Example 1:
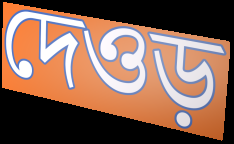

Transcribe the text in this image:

দেওড়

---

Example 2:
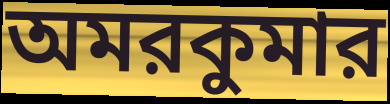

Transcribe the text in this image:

অমরকুমার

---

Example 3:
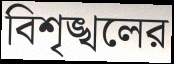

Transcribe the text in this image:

বিশৃঙ্খলের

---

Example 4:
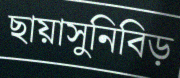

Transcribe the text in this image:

ছায়াসুনিবিড়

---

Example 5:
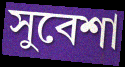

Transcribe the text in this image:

সুবেশা